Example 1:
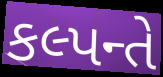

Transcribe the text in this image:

કલ્પન્તે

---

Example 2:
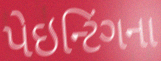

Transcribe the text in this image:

પેઇન્ટિંગના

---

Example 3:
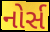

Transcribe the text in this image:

નોર્સ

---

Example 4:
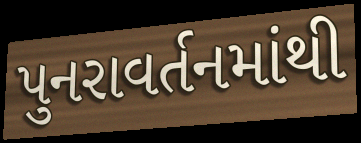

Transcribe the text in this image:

પુનરાવર્તનમાંથી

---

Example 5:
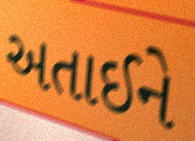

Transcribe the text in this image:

અતાઈને